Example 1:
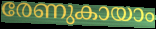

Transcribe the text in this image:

രേണുകായാം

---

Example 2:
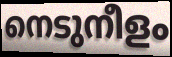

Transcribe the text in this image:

നെടുനീളം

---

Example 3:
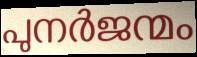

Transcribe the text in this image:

പുനർജന്മം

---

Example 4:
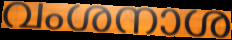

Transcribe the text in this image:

വംശനാശ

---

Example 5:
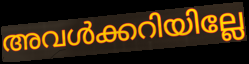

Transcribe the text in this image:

അവൾക്കറിയില്ലേ